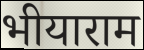
भीयाराम